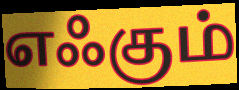
எஃகும்